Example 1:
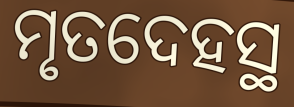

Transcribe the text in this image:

ମୃତଦେହସ୍ଥ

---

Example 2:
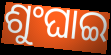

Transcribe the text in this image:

ଶୁଂଘାଇ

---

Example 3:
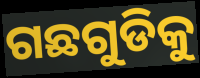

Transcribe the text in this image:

ଗଛଗୁଡିକୁ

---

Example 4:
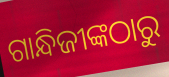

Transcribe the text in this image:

ଗାନ୍ଧିଜୀଙ୍କଠାରୁ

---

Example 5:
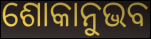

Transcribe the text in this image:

ଶୋକାନୁଭବ